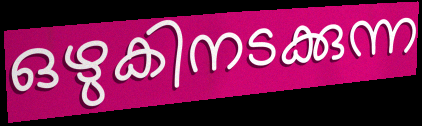
ഒഴുകിനടക്കുന്ന